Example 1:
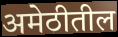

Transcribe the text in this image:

अमेठीतील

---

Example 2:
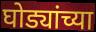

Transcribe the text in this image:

घोड्यांच्या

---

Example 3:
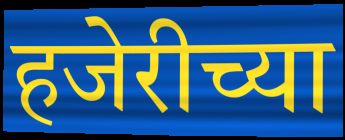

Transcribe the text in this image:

हजेरीच्या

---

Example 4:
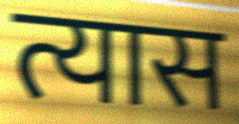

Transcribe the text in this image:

त्यास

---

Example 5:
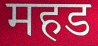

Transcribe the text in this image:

महड